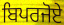
ਬਿਪਰਜੋਏ